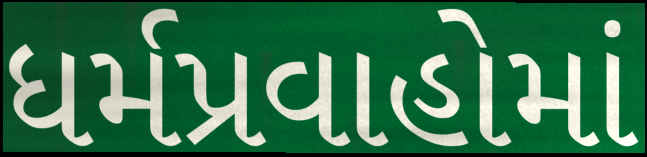
ધર્મપ્રવાહોમાં